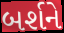
બર્શને